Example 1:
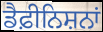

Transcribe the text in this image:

ਡੈਫ਼ੀਨਿਸ਼ਨਾਂ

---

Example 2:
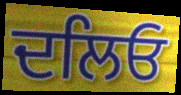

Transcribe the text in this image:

ਦਲਿਓ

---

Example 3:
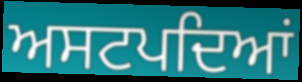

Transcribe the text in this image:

ਅਸਟਪਦਿਆਂ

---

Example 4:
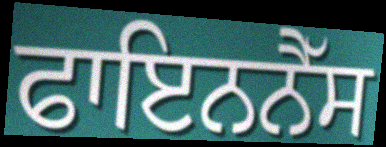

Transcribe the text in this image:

ਫਾਇਨਨੈੱਸ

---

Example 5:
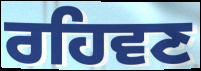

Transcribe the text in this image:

ਰਹਿਵਣ